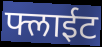
फ्लाईट